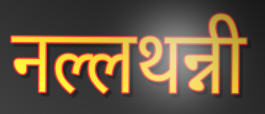
नल्लथन्नी